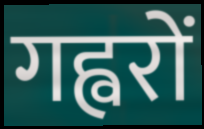
गह्वरों